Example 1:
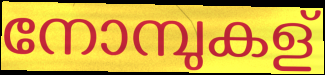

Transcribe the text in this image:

നോമ്പുകള്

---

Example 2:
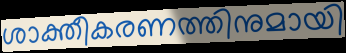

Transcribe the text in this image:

ശാക്തീകരണത്തിനുമായി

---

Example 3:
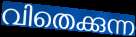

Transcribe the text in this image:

വിതെക്കുന്ന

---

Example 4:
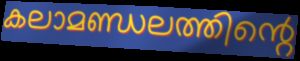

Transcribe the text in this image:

കലാമണ്ഡലത്തിന്റെ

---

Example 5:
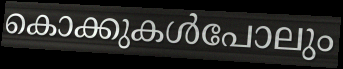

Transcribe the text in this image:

കൊക്കുകൾപോലും